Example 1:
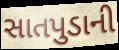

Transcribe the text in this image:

સાતપુડાની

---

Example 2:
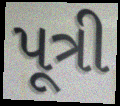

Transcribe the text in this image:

પૂત્રી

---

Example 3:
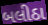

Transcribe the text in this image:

બલીઠા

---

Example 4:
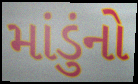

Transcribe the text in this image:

માંડુંનો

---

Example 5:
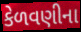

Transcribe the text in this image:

કેળવણીના